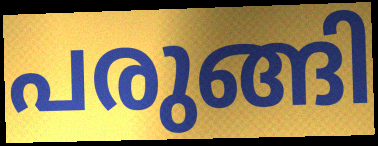
പരുങ്ങി